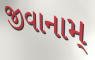
જીવાનામ્